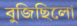
বুজিছিলো